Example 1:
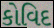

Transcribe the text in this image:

કોવિદ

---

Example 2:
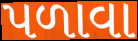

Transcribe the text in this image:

પળાવા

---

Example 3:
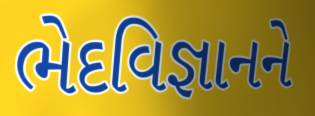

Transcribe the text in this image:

ભેદવિજ્ઞાનને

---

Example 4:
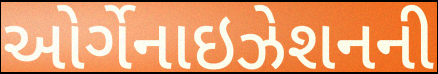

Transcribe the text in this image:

ઓર્ગેનાઇઝેશનની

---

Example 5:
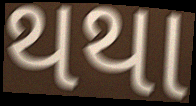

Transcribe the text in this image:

થથા